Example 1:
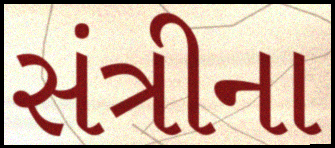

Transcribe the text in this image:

સંત્રીના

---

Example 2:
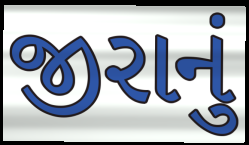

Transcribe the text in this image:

જીરાનું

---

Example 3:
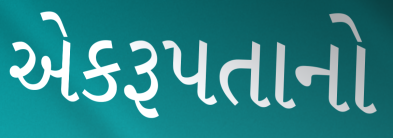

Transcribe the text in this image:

એકરૂપતાનો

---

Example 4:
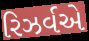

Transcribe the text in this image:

રિઝર્વએ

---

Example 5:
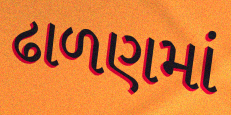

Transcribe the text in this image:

ઢાળણમાં